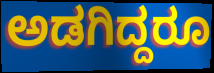
ಅಡಗಿದ್ದರೂ